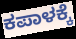
ಕಪಾಳಕ್ಕೆ